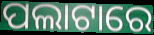
ପଲାଟାରେ